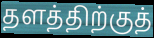
தளத்திற்குத்